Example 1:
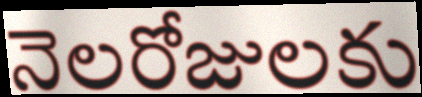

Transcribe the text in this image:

నెలరోజులకు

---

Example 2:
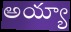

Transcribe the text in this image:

అయ్యా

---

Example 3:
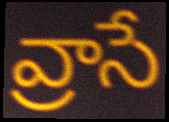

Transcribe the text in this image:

వ్రాసే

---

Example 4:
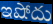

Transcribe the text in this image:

ఇషోదు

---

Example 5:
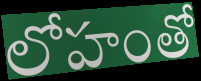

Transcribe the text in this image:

లోహంతో